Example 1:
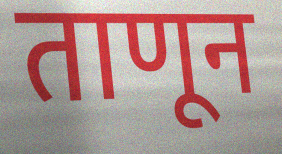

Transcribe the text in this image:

ताणून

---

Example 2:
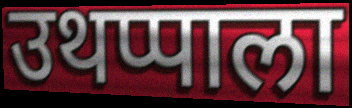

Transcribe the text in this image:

उथप्पाला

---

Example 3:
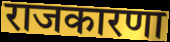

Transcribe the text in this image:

राजकारणा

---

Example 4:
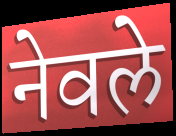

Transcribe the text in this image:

नेवले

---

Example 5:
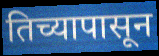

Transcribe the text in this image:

तिच्यापासून